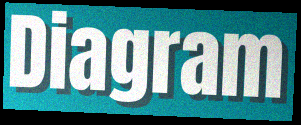
Diagram